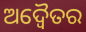
ଅଦ୍ଵୈତର